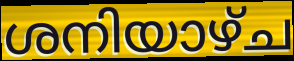
ശനിയാഴ്ച